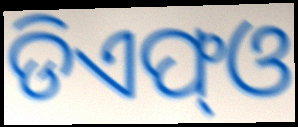
ଡିଏଫ୍ଓ